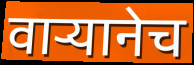
वाऱ्यानेच